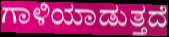
ಗಾಳಿಯಾಡುತ್ತದೆ